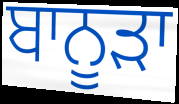
ਬਾਨੂੜਾ